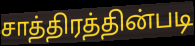
சாத்திரத்தின்படி